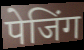
पेजिंग